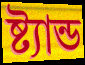
ষ্ট্যান্ড